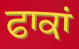
ਫਾਕਾਂ